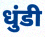
धुंडी